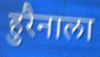
हुरैनाला